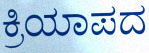
ಕ್ರಿಯಾಪದ